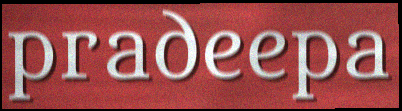
pradeepa